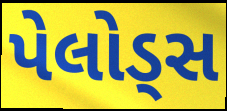
પેલોડ્સ